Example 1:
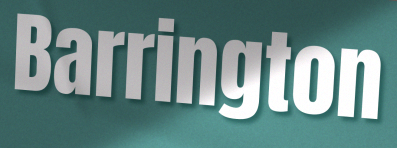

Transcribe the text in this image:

Barrington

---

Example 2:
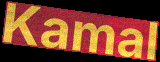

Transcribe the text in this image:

Kamal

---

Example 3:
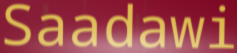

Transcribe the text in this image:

Saadawi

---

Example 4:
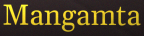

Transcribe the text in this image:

Mangamta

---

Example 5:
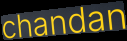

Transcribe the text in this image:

chandan